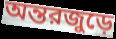
অন্তরজুড়ে